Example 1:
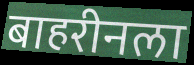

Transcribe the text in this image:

बाहरीनला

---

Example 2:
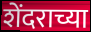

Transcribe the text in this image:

शेंदराच्या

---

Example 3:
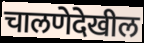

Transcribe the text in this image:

चालणेदेखील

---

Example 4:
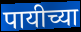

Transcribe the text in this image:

पायीच्या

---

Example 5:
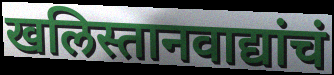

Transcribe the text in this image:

खलिस्तानवाद्यांचं